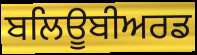
ਬਲਿਊਬੀਅਰਡ